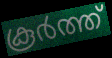
കൂർത്ത്